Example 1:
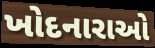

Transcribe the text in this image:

ખોદનારાઓ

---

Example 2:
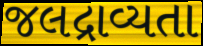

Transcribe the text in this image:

જલદ્રાવ્યતા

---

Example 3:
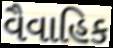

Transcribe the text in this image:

વૈવાહિક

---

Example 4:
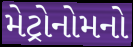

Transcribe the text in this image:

મેટ્રોનોમનો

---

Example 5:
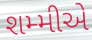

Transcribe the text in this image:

શમ્મીએ